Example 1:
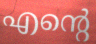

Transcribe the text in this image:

എന്റെ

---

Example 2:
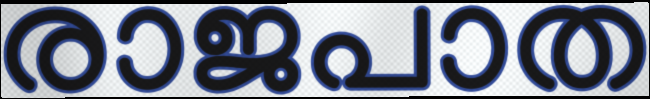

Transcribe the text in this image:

രാജപാത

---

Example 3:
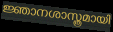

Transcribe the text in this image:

ജ്ഞാനശാസ്ത്രമായി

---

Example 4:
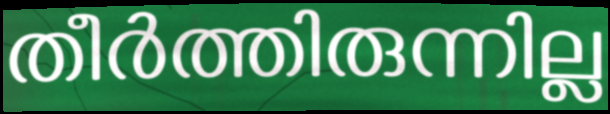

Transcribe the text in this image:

തീർത്തിരുന്നില്ല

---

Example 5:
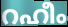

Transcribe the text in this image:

റഹീം